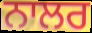
ਨਾਲਰ